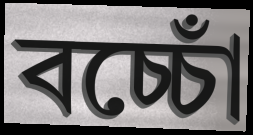
বচ্চোঁ